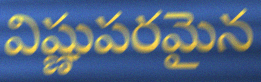
విష్ణుపరమైన